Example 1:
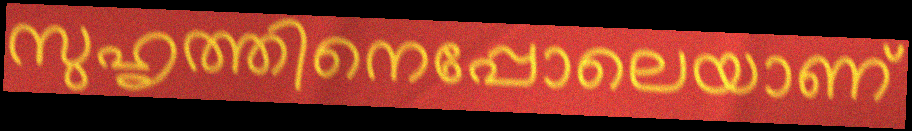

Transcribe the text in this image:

സുഹൃത്തിനെപ്പോലെയാണ്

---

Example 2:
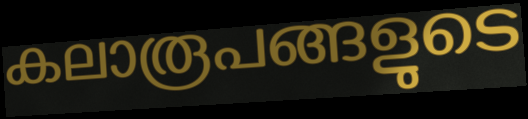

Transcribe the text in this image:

കലാരൂപങ്ങളുടെ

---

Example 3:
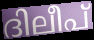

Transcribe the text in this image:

ദിലീപ്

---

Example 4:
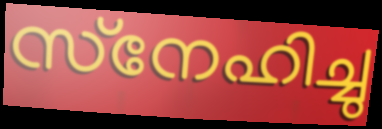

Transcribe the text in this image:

സ്‌നേഹിച്ചു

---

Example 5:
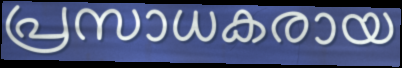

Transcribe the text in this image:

പ്രസാധകരായ